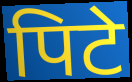
पिटे